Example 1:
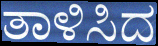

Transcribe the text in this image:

ತಾಳಿಸಿದ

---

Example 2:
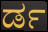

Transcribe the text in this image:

ರ್ಡ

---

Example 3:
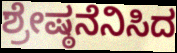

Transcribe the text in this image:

ಶ್ರೇಷ್ಠನೆನಿಸಿದ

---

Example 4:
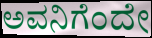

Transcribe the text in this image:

ಅವನಿಗೆಂದೇ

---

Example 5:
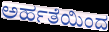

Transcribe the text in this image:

ಅರ್ಹತೆಯಿಂದ